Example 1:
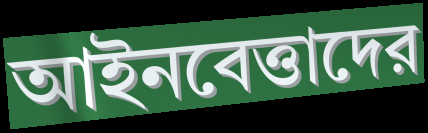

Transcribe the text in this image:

আইনবেত্তাদের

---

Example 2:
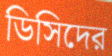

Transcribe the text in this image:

ডিসিদের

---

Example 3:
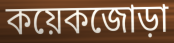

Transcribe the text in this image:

কয়েকজোড়া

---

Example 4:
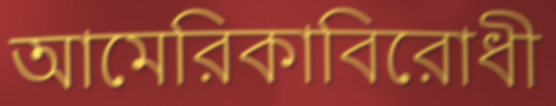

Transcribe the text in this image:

আমেরিকাবিরোধী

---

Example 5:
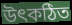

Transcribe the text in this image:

উৎকঠিত